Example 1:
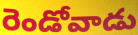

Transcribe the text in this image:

రెండోవాడు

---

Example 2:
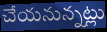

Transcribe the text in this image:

చేయనున్నట్లు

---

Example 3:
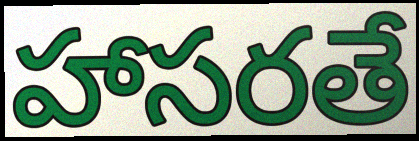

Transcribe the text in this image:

హాసరతే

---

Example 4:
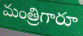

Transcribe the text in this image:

మంత్రిగారూ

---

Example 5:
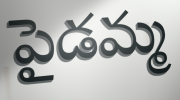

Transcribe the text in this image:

పైడమ్మ